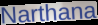
Narthana